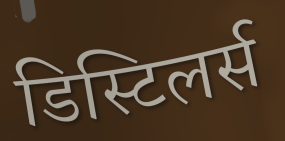
डिस्टिलर्स